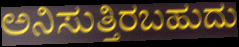
ಅನಿಸುತ್ತಿರಬಹುದು